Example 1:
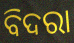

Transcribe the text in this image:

ବିଦରା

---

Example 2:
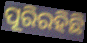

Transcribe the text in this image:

ପୂରିରହିଛି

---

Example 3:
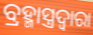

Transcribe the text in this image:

ବ୍ରହ୍ମାସ୍ତ୍ରଦ୍ୱାରା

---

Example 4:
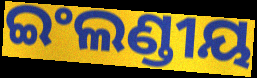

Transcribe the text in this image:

ଇଂଲଣ୍ଡୀୟ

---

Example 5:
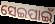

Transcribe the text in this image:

ସେଇପାଇଁ